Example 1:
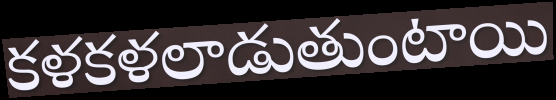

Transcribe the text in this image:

కళకళలాడుతుంటాయి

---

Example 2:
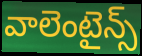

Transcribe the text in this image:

వాలెంటైన్స్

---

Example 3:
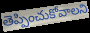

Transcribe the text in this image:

తెప్పించుకోవాలని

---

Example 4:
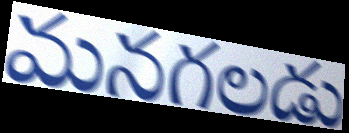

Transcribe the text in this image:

మనగలడు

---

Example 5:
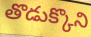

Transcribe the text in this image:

తొడుక్కొని